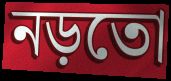
নড়তো